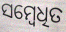
ସମ୍ବେଧିତ